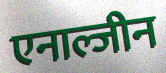
एनाल्जीन